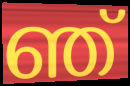
ഞ്